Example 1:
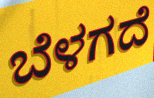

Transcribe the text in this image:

ಬೆಳಗದೆ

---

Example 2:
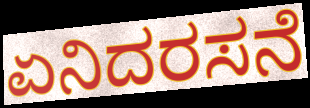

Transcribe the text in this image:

ಏನಿದರಸನೆ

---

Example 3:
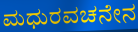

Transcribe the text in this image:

ಮಧುರವಚನೇನ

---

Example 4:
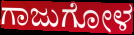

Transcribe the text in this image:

ಗಾಜುಗೋಳ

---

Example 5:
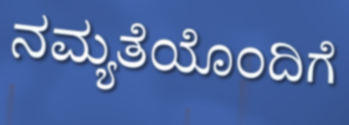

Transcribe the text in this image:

ನಮ್ಯತೆಯೊಂದಿಗೆ